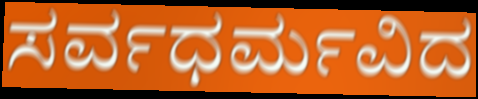
ಸರ್ವಧರ್ಮವಿದ